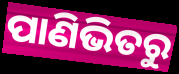
ପାଣିଭିତରୁ